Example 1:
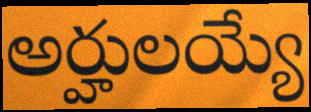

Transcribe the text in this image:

అర్హులయ్యే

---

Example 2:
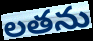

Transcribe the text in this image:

లతను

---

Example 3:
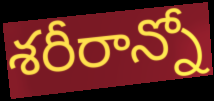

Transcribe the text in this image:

శరీరాన్నో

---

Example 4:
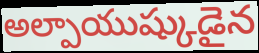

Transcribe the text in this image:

అల్పాయుష్కుడైన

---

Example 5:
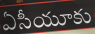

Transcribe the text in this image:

ఏసీయూకు